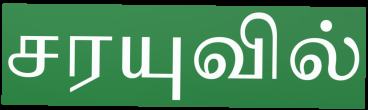
சரயுவில்